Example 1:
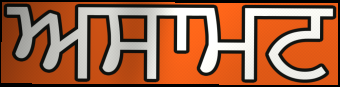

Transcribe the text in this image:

ਅਸਾਮਟ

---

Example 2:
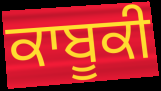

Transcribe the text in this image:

ਕਾਬੂਕੀ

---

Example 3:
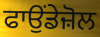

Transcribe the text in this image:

ਫਾਉਂਡੇਜ਼ੋਲ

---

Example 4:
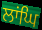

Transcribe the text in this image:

ਲਾਂਘਿ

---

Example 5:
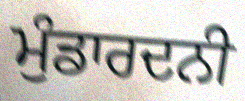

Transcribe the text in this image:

ਮੁੰਡਾਰਦਨੀ